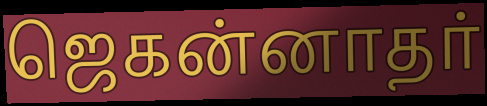
ஜெகன்னாதர்